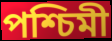
পশ্চিমী